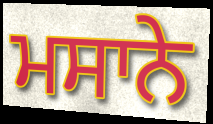
ਮਸਾਨੇ